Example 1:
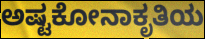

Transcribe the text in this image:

ಅಷ್ಟಕೋನಾಕೃತಿಯ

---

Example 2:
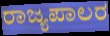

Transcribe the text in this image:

ರಾಜ್ಯಪಾಲರ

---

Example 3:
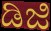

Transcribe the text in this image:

ಡಿಜಿ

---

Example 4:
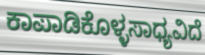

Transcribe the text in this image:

ಕಾಪಾಡಿಕೊಳ್ಳಸಾಧ್ಯವಿದೆ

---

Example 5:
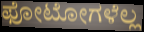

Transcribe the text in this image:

ಫೋಟೋಗಳೆಲ್ಲ